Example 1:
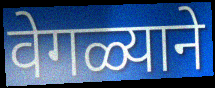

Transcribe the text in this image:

वेगळ्याने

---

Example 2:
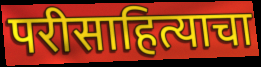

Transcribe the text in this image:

परीसाहित्याचा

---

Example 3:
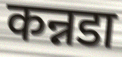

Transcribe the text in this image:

कन्नडा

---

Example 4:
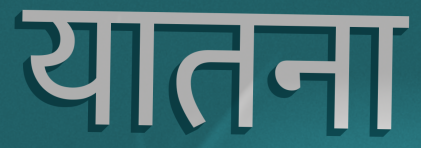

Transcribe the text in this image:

यातना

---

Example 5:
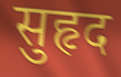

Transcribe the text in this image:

सुहृद